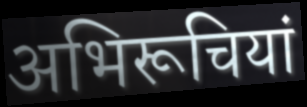
अभिरूचियां